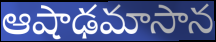
ఆషాఢమాసాన